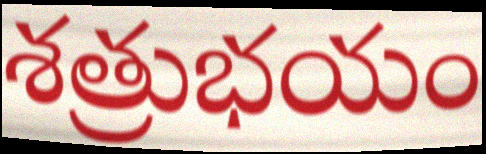
శత్రుభయం